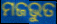
ମଜଭୁତ